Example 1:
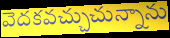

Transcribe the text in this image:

వెదకవచ్చుచున్నాను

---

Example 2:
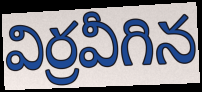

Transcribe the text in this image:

విర్రవీగిన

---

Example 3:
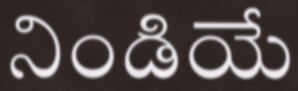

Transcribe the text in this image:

నిండియే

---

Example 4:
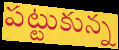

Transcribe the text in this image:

పట్టుకున్న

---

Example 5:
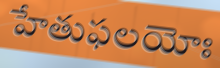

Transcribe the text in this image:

హేతుఫలయోః